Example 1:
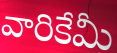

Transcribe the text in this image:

వారికేమీ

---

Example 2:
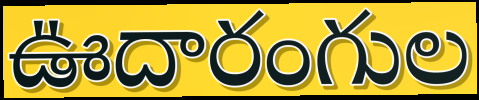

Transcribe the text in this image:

ఊదారంగుల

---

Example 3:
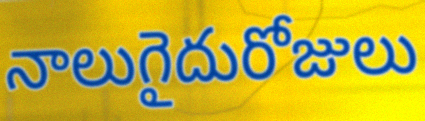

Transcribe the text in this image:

నాలుగైదురోజులు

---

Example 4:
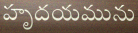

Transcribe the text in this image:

హృదయమును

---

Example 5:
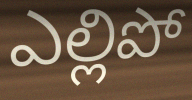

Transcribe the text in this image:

ఎల్లిపో